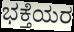
ಭಕ್ತೆಯರ